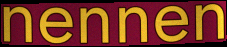
nennen